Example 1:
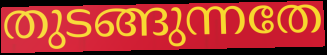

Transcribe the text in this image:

തുടങ്ങുന്നതേ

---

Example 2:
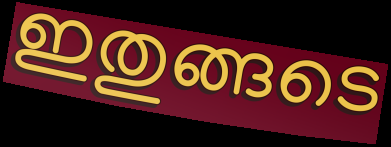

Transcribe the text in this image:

ഇതുങ്ങടെ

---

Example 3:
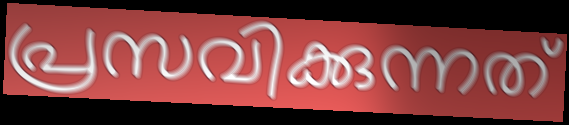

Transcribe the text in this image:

പ്രസവിക്കുന്നത്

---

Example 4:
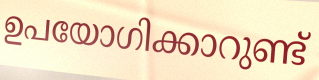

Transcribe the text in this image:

ഉപയോഗിക്കാറുണ്ട്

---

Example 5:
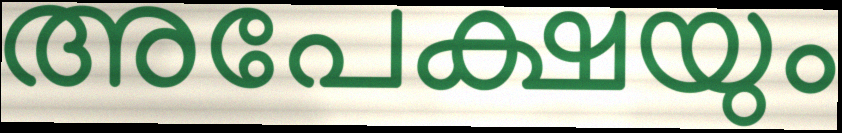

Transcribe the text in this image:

അപേക്ഷയും